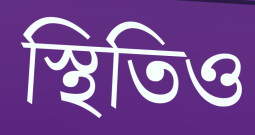
স্থিতিও